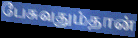
பேசுவதும்தான்